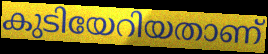
കുടിയേറിയതാണ്